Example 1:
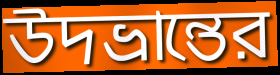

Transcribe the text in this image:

উদভ্রান্তের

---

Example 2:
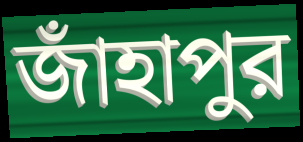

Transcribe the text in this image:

জাঁহাপুর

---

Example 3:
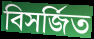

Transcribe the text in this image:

বিসর্জিত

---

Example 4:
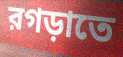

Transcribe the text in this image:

রগড়াতে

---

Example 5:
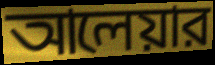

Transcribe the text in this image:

আলেয়ার